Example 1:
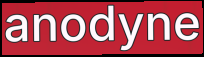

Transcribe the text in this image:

anodyne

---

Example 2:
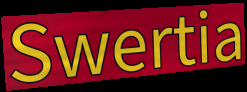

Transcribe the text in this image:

Swertia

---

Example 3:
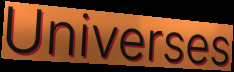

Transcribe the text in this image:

Universes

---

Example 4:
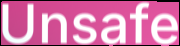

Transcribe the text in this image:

Unsafe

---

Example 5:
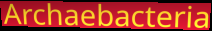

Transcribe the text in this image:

Archaebacteria